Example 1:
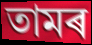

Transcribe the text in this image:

তামৰ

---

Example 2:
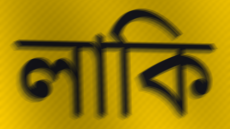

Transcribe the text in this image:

লাকি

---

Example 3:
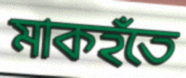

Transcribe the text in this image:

মাকহঁতে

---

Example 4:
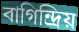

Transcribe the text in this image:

বাগিন্দ্ৰিয়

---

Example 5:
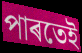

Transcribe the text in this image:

পাৰতেই